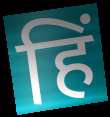
हिं